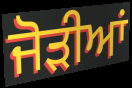
ਜੋਡ਼ੀਆਂ